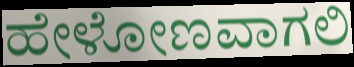
ಹೇಳೋಣವಾಗಲಿ